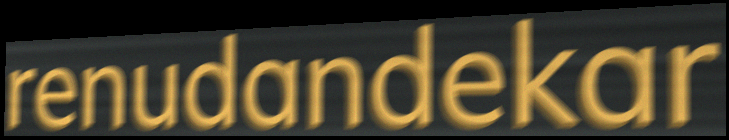
renudandekar